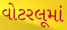
વોટરલૂમાં